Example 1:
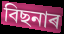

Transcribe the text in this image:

বিছনাৰ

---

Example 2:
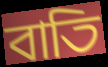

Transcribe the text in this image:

বাতি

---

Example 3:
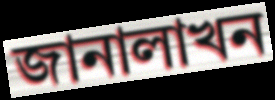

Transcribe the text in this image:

জানালাখন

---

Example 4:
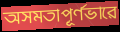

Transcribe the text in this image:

অসমতাপূৰ্ণভাৱে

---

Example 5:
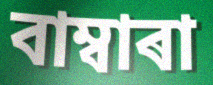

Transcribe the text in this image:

বাম্বাৰা